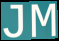
JM